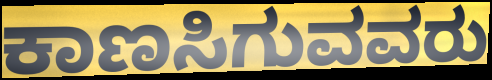
ಕಾಣಸಿಗುವವರು